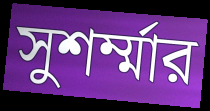
সুশর্ম্মার